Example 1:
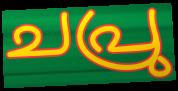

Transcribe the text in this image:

ചപ്രു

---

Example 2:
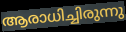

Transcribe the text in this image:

ആരാധിച്ചിരുന്നു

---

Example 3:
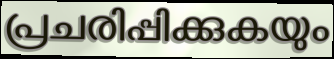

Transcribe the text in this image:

പ്രചരിപ്പിക്കുകയും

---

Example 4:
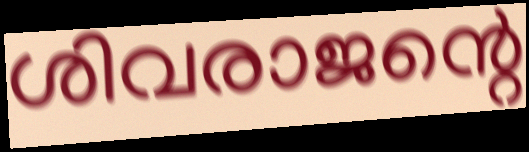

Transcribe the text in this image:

ശിവരാജന്റെ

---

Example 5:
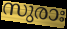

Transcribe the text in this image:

സുരാഃ